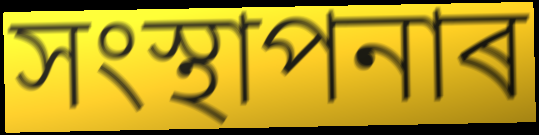
সংস্থাপনাৰ